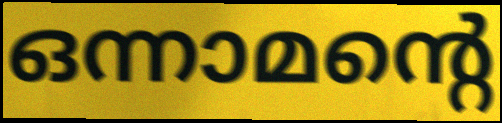
ഒന്നാമന്റെ